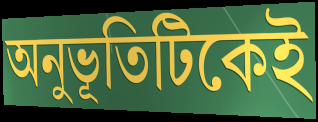
অনুভূতিটিকেই